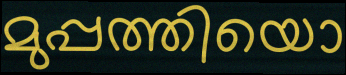
മുപ്പത്തിയൊ